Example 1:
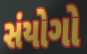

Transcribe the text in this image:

સંયોગો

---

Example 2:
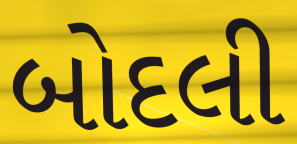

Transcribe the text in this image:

બોદલી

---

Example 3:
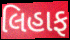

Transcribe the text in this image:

લિહાફ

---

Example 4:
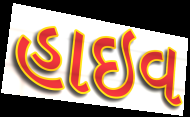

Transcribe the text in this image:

હાઇવ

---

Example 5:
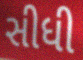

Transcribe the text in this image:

સીધી